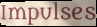
Impulses